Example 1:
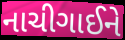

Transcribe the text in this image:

નાચીગાઈને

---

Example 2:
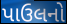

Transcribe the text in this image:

પાઉલનો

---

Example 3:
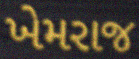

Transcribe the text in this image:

ખેમરાજ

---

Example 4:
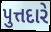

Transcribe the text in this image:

પુત્તદારે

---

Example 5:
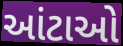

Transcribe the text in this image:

આંટાઓ